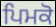
ਪਿਮਕੋ